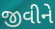
જીવીને